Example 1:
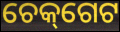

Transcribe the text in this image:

ଚେକ୍‌ଗେଟ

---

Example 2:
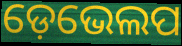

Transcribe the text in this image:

ଡ଼େଭେଲପ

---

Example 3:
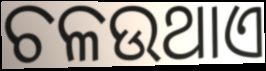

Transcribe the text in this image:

ଚଳଉଥାଏ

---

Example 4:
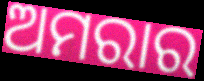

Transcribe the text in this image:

ଅମରାର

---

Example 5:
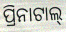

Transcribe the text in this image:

ପ୍ରିନାଟାଲ୍